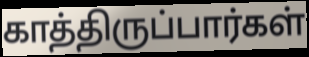
காத்திருப்பார்கள்